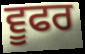
ਵੂਫਰ